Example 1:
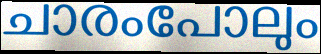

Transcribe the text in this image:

ചാരംപോലും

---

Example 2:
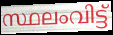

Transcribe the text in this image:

സ്ഥലംവിട്ട്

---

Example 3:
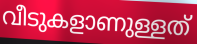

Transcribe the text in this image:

വീടുകളാണുള്ളത്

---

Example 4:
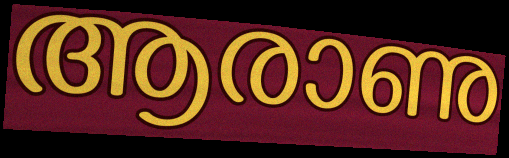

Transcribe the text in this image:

ആരാണു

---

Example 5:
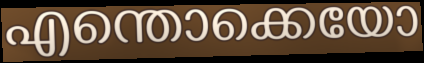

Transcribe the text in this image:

എന്തൊക്കെയോ